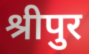
श्रीपुर